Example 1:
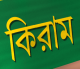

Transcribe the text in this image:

কিরাম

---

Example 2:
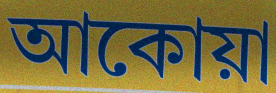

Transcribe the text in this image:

আকোয়া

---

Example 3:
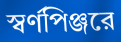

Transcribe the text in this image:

স্বর্ণপিঞ্জরে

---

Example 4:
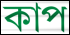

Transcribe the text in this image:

কাপ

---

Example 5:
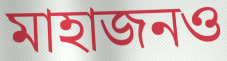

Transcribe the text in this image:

মাহাজনও